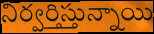
నిర్వర్తిస్తున్నాయి